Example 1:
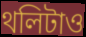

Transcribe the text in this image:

থলিটাও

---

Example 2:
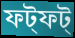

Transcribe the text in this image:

ফট্ফট্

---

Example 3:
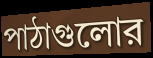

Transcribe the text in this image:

পাঠাগুলোর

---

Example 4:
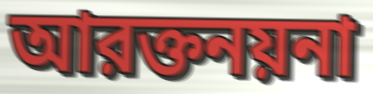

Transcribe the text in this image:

আরক্তনয়না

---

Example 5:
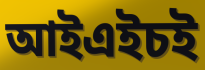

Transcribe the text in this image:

আইএইচই